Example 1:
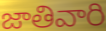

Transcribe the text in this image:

జాతివారి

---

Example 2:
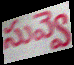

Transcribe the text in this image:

సువ్వె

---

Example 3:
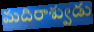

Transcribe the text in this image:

మదిరాశ్వుడు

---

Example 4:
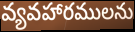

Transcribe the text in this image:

వ్యవహారములను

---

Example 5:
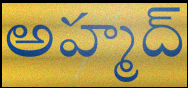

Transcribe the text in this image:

అహ్మద్